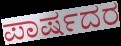
ಪಾರ್ಷದರ